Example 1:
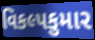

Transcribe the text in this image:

વિકલ્પકુમાર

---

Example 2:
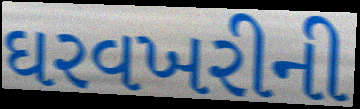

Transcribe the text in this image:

ઘરવખરીની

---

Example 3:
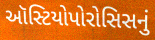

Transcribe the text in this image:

ઑસ્ટિયોપોરોસિસનું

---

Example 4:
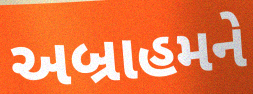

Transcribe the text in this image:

અબ્રાહમને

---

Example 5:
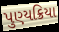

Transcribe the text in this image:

પુણ્યક્રિયા